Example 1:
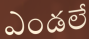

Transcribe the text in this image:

ఎండలే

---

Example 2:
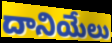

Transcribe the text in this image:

దానియేలు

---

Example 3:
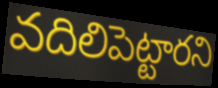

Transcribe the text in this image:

వదిలిపెట్టారని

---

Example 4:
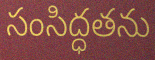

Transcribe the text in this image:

సంసిద్ధతను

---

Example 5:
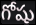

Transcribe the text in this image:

గోషు